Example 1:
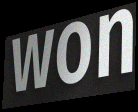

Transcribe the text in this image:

won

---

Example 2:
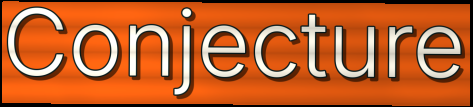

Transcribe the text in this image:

Conjecture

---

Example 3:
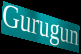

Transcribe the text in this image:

Gurugun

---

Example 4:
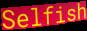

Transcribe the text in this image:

Selfish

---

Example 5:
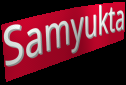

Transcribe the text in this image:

Samyukta